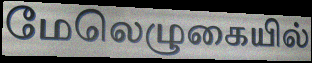
மேலெழுகையில்